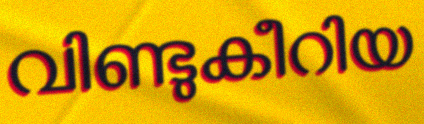
വിണ്ടുകീറിയ